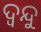
ଦ୍ଵନ୍ଦୁ